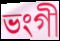
ভংগী